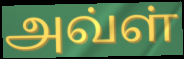
அவ்ள்